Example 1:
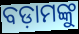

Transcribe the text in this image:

ବଡ଼ାମଙ୍କୁ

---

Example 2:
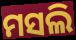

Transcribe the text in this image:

ମସଲି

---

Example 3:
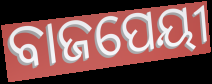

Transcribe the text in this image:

ବାଜପେୟୀ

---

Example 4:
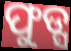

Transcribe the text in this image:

ଫୁଡ୍ସ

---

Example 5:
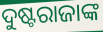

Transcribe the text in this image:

ଦୁଷ୍ଟରାଜାଙ୍କ